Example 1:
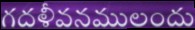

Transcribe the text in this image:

గదళీవనములందు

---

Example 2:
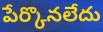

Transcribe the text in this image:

పేర్కొనలేదు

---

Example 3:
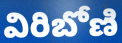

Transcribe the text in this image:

విరిబోణి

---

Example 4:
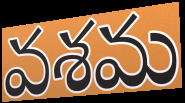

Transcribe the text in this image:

వశమ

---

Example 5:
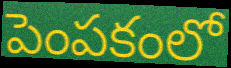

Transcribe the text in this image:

పెంపకంలో